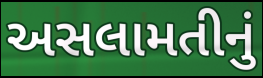
અસલામતીનું